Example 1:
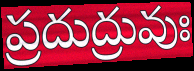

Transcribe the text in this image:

ప్రదుద్రువుః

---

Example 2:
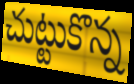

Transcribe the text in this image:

చుట్టుకొన్న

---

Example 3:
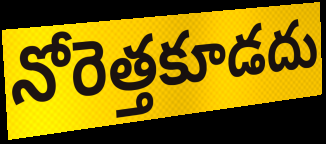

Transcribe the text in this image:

నోరెత్తకూడదు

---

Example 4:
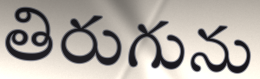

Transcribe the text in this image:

తిరుగును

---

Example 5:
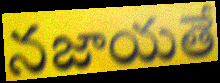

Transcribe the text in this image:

నజాయతే